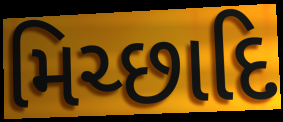
મિચ્છાદિ